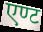
एण्ट